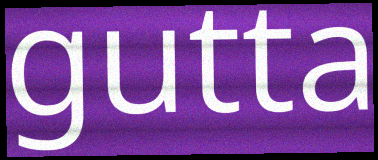
gutta